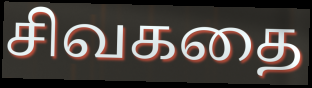
சிவகதை